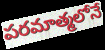
పరమాత్మలోనే